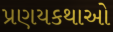
પ્રણયકથાઓ